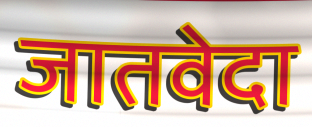
जातवेदा